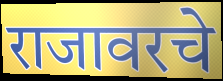
राजावरचे